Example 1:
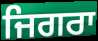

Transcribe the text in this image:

ਜਿਗਰਾ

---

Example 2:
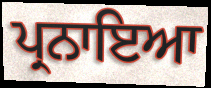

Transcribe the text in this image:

ਪ੍ਰਨਾਇਆ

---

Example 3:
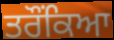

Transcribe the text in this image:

ਤਰੌਂਕਿਆ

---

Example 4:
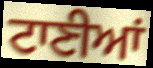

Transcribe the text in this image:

ਟਾਣੀਆਂ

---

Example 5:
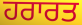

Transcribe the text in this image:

ਹਰਾਰਤ